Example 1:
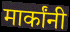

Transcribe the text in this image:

मार्कांनी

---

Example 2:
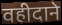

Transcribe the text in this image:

वहीदाने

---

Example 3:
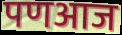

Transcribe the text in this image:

पणआज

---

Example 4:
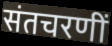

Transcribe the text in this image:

संतचरणीं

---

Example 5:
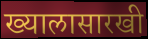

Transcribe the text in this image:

ख्यालासारखी